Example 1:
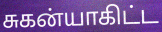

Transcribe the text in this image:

சுகன்யாகிட்ட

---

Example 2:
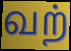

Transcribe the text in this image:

வற்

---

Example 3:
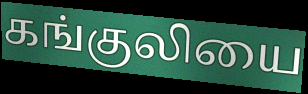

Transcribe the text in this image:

கங்குலியை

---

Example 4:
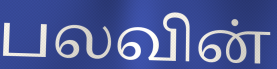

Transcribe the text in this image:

பலவின்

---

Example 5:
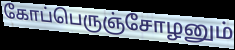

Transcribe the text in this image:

கோப்பெருஞ்சோழனும்